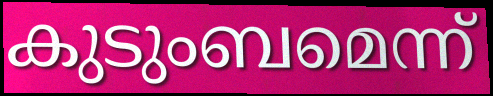
കുടുംബമെന്ന്